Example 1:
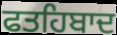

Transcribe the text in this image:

ਫਤਹਿਬਾਦ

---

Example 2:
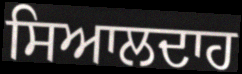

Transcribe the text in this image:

ਸਿਆਲਦਾਹ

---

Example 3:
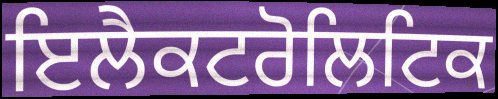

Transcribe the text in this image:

ਇਲੈਕਟਰੋਲਿਟਿਕ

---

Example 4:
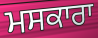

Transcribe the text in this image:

ਮਸਕਾਰਾ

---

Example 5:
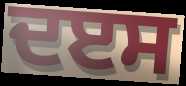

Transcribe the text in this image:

ਦੲਸ